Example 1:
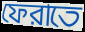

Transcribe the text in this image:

ফেরাতে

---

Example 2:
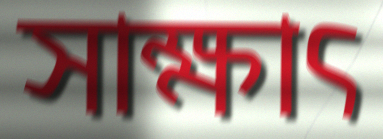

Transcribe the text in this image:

সাক্ষাৎ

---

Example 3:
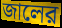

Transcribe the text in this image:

জালের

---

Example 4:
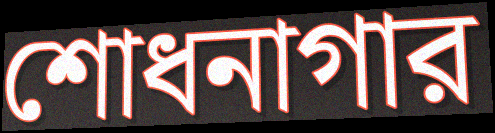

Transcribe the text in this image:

শোধনাগার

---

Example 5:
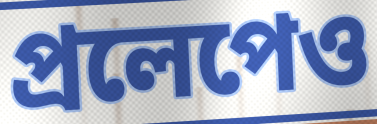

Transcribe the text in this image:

প্রলেপেও